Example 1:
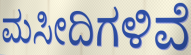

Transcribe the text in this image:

ಮಸೀದಿಗಳಿವೆ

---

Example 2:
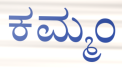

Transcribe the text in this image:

ಕಮ್ಮಂ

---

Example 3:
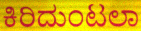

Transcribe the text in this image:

ಕಿರಿದುಂಟಲಾ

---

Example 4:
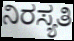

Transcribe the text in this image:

ನಿರಸ್ಯತಿ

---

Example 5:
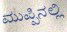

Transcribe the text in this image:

ಮುಪ್ಪಿನಲ್ಲಿ